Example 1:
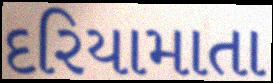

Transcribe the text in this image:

દરિયામાતા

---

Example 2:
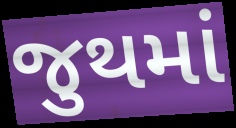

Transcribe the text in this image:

જુથમાં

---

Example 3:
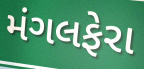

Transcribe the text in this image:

મંગલફેરા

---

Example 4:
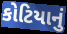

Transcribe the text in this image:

કોટિયાનું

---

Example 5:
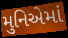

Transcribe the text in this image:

મુનિએમાં